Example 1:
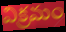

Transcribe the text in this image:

విక్రమం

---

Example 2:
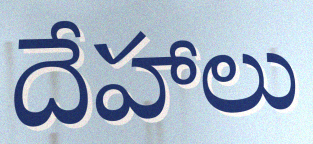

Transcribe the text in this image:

దేహాలు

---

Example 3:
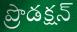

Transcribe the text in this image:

ప్రొడక్షన్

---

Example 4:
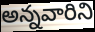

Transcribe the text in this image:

అన్నవారిని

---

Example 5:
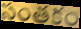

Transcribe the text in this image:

సంతకం